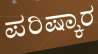
ಪರಿಷ್ಕಾರ